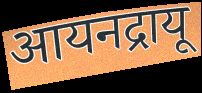
आयनद्रायू